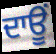
ਦਾਊਂ